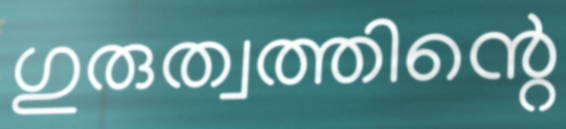
ഗുരുത്വത്തിന്റെ